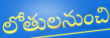
లోతులనుంచి